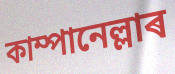
কাম্পানেল্লাৰ